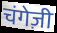
चंगेज़ी